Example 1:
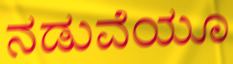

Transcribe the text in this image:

ನಡುವೆಯೂ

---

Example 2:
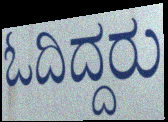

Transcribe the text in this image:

ಓದಿದ್ದರು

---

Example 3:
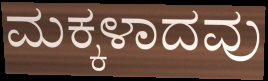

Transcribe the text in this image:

ಮಕ್ಕಳಾದವು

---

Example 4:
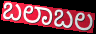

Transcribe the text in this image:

ಬಲಾಬಲ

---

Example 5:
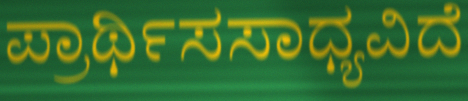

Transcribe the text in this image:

ಪ್ರಾರ್ಥಿಸಸಾಧ್ಯವಿದೆ